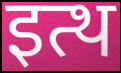
इत्थ